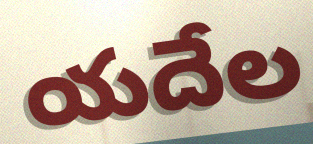
యదేల